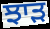
ਝਾੜ